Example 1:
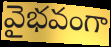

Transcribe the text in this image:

వైభవంగా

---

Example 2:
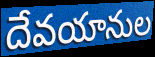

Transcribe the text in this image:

దేవయానుల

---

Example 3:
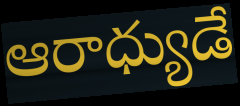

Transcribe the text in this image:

ఆరాధ్యుడే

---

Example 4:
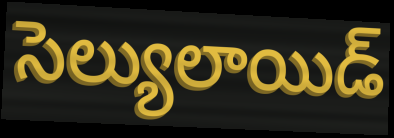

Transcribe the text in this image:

సెల్యులాయిడ్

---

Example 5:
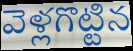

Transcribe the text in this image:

వెళ్లగొట్టిన